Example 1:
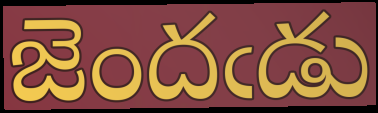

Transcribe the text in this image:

జెందఁడు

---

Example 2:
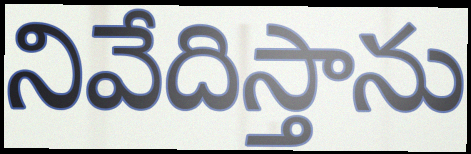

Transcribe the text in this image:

నివేదిస్తాను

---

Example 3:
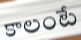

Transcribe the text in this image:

కాలంటే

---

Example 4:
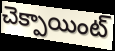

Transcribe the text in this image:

చెక్పాయింట్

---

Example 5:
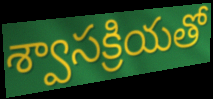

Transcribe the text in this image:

శ్వాసక్రియతో